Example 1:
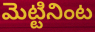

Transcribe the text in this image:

మెట్టినింట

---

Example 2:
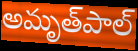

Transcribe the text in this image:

అమృత్‌పాల్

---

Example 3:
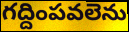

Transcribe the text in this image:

గద్దింపవలెను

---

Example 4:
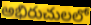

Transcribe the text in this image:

అభిరుచులలో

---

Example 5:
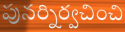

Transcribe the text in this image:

పునర్నిర్వచించి